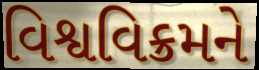
વિશ્વવિક્રમને